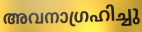
അവനാഗ്രഹിച്ചു